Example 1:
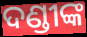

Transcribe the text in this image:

ଦଣ୍ଡୀଙ୍କ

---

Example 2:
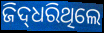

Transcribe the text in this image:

ଜିଦ୍‌ଧରିଥିଲେ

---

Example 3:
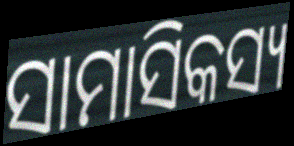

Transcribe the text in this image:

ସାମାସିକସ୍ୟ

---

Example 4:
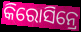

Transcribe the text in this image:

କିରୋସିନ୍ରେ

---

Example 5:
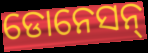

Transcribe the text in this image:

ଡୋନେସନ୍